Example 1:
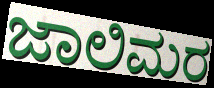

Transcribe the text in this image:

ಜಾಲಿಮರ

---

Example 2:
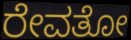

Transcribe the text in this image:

ರೇವತೋ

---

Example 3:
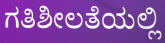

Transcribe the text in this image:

ಗತಿಶೀಲತೆಯಲ್ಲಿ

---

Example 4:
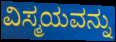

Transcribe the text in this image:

ವಿಸ್ಮಯವನ್ನು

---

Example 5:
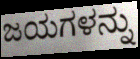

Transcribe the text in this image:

ಜಯಗಳನ್ನು